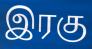
இரகு